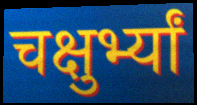
चक्षुर्भ्यां